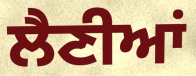
ਲੈਣੀਆਂ